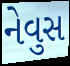
નેવુસ